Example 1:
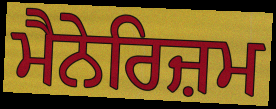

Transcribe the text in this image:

ਮੈਨੇਰਿਜ਼ਮ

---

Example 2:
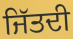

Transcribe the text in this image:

ਜਿੱਤਦੀ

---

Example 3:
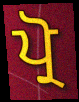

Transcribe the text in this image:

ਪ੍ਰੋ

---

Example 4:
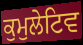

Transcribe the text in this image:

ਕੁਮੁਲੇਟਿਵ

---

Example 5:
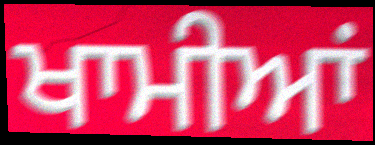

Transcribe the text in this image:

ਖਾਮੀਆਂ